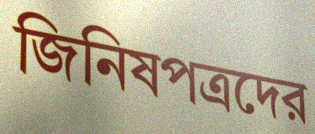
জিনিষপত্রদের